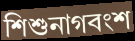
শিশুনাগবংশ